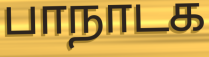
பாநாடக